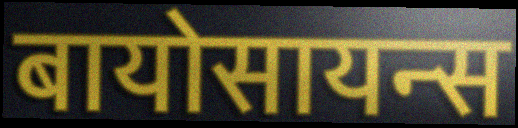
बायोसायन्स